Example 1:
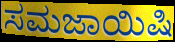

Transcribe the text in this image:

ಸಮಜಾಯಿಷಿ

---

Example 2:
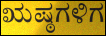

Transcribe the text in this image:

ಋಷ್ಠಗಳಿಗ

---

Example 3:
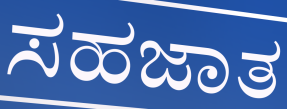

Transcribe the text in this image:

ಸಹಜಾತ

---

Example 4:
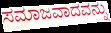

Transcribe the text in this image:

ಸಮಾಜವಾದವನ್ನು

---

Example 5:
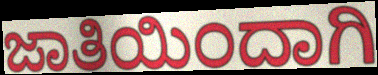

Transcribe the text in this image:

ಜಾತಿಯಿಂದಾಗಿ